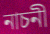
নাচনী